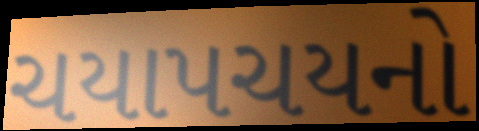
ચયાપચયનો